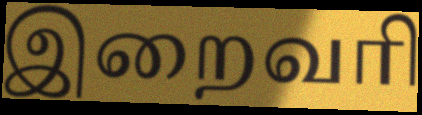
இறைவரி